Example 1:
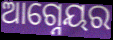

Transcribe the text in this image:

ଆଗ୍ନେୟର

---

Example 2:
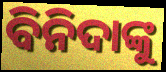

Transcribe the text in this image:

ବିନିଦାଙ୍କୁ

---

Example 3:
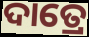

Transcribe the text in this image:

ଦାତ୍ରେ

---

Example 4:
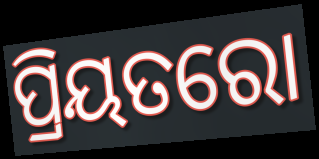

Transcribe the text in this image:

ପ୍ରିୟତରୋ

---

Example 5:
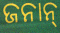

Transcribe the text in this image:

ଜନାନ୍